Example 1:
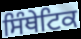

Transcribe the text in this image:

ਸਿੰਥੇਟਿਕ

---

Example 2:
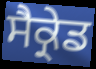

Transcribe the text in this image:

ਸੈਕ੍ਰੇਡ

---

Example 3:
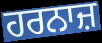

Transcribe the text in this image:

ਹਰਨਾਜ਼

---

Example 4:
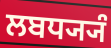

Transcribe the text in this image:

ਲਬਧ੍ਯ੍ਯੰ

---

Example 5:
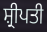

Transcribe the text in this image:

ਸ਼੍ਰੀਪਤੀ